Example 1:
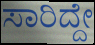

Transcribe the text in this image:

ಸಾರಿದ್ದೇ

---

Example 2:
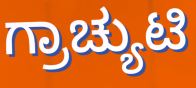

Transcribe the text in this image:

ಗ್ರಾಚ್ಯುಟಿ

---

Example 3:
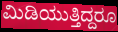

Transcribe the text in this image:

ಮಿಡಿಯುತ್ತಿದ್ದರೂ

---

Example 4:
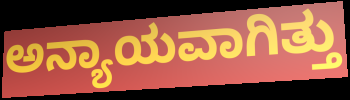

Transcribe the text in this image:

ಅನ್ಯಾಯವಾಗಿತ್ತು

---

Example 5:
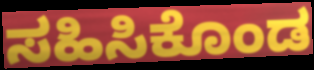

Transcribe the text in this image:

ಸಹಿಸಿಕೊಂಡ